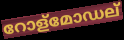
റോള്മോഡല്